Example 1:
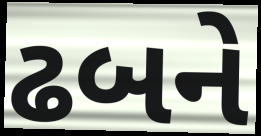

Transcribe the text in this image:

ઢબને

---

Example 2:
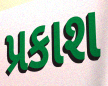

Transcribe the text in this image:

પ્રકાશ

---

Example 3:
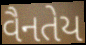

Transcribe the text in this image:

વૈનતેય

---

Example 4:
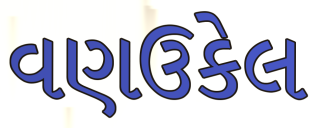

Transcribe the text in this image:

વણઉકેલ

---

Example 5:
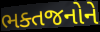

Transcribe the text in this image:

ભક્તજનોને